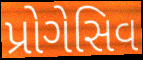
પ્રોગેસિવ